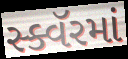
સ્ક્વૅરમાં